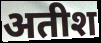
अतीश